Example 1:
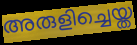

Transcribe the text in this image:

അരുളിച്ചെയ്ത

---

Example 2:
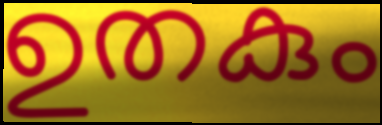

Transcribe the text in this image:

ഉതകും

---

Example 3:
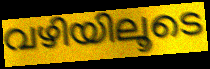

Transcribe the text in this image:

വഴിയിലൂടെ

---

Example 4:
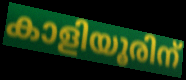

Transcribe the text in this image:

കാളിയൂരിന്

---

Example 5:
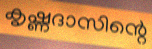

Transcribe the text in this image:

കൃഷ്ണദാസിന്റെ